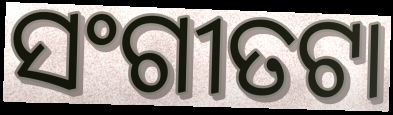
ସଂଗୀତଟା